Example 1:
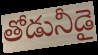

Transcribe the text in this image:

తోడునీడై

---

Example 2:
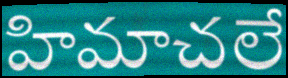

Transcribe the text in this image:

హిమాచలే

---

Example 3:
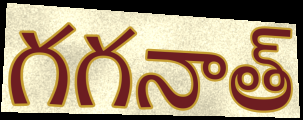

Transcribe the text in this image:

గగనాత్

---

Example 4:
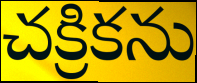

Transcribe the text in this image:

చక్రికను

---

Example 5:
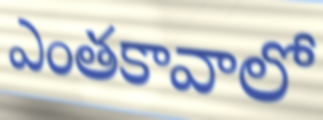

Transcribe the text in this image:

ఎంతకావాలో